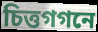
চিত্তগগনে